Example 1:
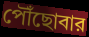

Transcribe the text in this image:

পৌঁছোবার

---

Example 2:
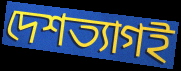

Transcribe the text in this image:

দেশত্যাগই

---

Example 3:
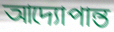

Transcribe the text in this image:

আদ্যোপান্ত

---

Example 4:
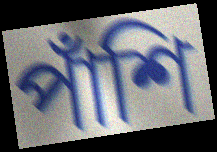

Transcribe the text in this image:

পাঁশি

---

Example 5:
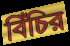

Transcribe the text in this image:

বিঁচির